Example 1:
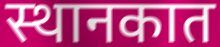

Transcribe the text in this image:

स्थानकात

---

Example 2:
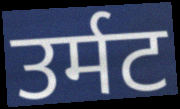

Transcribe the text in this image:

उर्मट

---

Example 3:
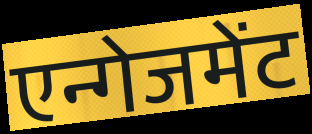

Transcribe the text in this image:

एन्गेजमेंट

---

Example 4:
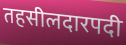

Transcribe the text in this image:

तहसीलदारपदी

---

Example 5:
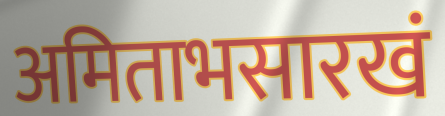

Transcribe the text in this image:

अमिताभसारखं